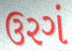
ઉરગં